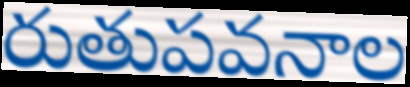
రుతుపవనాల